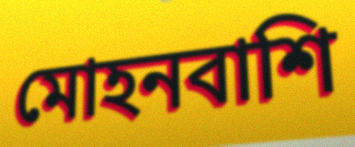
মোহনবাশি